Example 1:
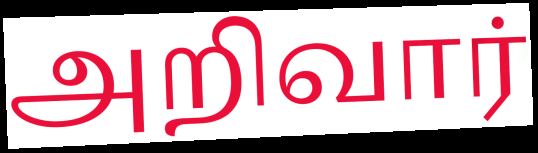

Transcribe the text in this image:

அறிவார்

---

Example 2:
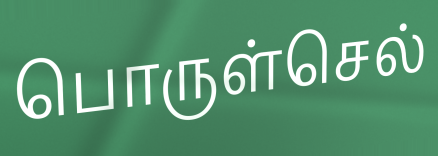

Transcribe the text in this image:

பொருள்செல்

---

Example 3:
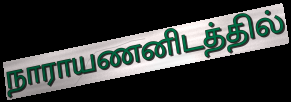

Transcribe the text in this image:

நாராயணனிடத்தில்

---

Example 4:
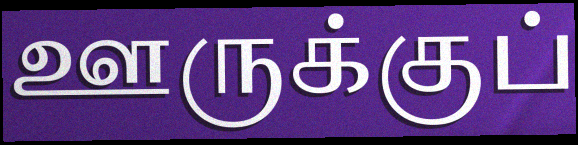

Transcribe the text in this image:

ஊருக்குப்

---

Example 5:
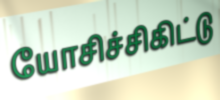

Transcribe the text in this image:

யோசிச்சிகிட்டு